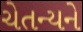
ચેતન્યને